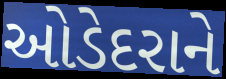
ઓડેદરાને